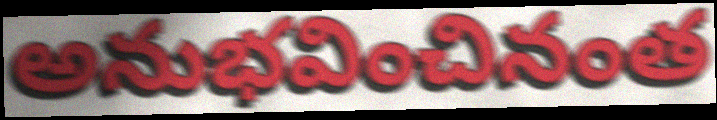
అనుభవించినంత